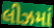
લીઝમાં